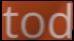
tod